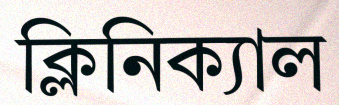
ক্লিনিক্যাল